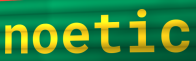
noetic